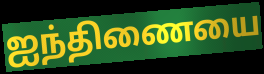
ஐந்திணையை